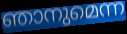
ഞാനുമെന്ന